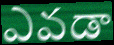
ఎవడా